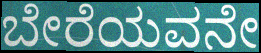
ಬೇರೆಯವನೇ